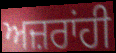
ਅਜ਼ਰਾਂਹੀ